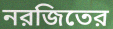
নরজিতের